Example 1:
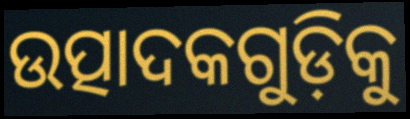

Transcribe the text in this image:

ଉତ୍ପାଦକଗୁଡ଼ିକୁ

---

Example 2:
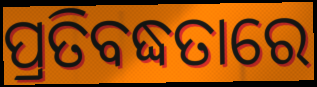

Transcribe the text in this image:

ପ୍ରତିବଦ୍ଧତାରେ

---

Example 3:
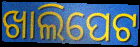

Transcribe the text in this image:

ଖାଲିପେଟ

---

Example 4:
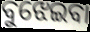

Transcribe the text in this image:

ବୁଝେଇବା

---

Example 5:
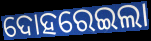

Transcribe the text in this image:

ଦୋହରେଇଲା